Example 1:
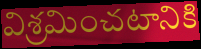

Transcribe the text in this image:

విశ్రమించటానికి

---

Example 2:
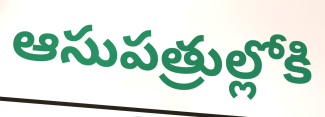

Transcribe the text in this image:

ఆసుపత్రుల్లోకి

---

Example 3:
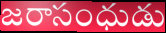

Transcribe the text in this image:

జరాసంధుడు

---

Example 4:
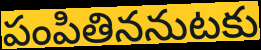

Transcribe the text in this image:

పంపితిననుటకు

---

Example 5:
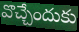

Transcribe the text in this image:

వొచ్చేందుకు